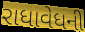
રાધાવેધની